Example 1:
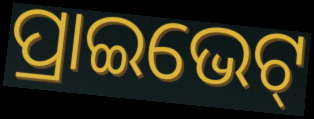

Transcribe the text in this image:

ପ୍ରାଇଭେଟ୍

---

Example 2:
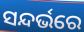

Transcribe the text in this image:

ସନ୍ଦର୍ଭରେ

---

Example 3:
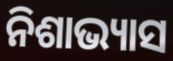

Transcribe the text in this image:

ନିଶାଭ୍ୟାସ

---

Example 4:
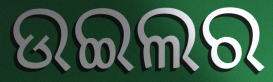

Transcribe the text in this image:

ଉଇଲର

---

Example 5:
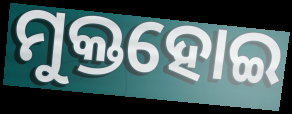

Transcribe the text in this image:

ମୁକ୍ତହୋଇ